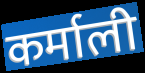
कर्माली